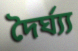
দৈৰ্ঘ্য্য